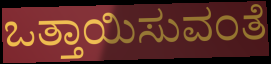
ಒತ್ತಾಯಿಸುವಂತೆ